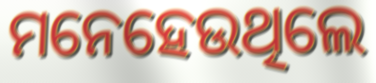
ମନେହେଉଥିଲେ